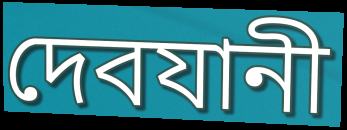
দেবযানী